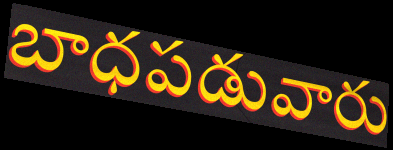
బాధపడువారు